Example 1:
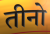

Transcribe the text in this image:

तीनो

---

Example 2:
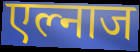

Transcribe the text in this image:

एल्नाज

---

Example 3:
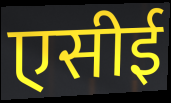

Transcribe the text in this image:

एसीई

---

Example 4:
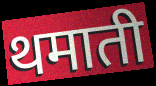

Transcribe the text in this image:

थमाती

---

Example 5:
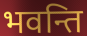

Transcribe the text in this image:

भवन्ति